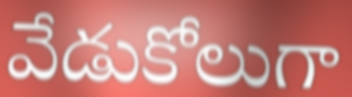
వేడుకోలుగా